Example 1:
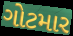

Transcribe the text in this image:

ગોટમાર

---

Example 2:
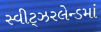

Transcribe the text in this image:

સ્વીટ્ઝરલેન્ડમાં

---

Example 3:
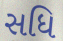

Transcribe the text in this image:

સધિ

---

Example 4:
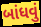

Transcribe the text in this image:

બાંધવું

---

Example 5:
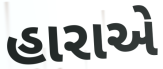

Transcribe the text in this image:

હારાએ